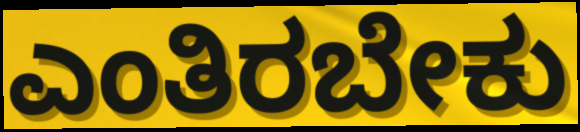
ಎಂತಿರಬೇಕು